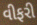
વીફરી